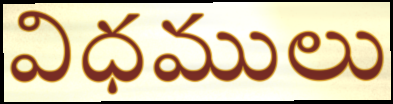
విధములు